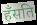
हँसति